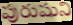
పురుషుని